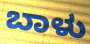
ಬಾಳು